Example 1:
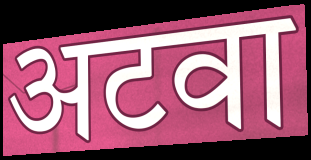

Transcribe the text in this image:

अटवा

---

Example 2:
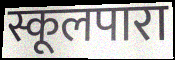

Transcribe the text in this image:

स्कूलपारा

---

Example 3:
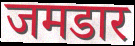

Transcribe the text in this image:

जमडार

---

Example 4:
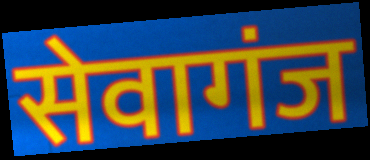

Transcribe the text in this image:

सेवागंज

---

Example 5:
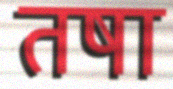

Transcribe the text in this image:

तषा